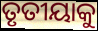
ତୃତୀୟାକୁ